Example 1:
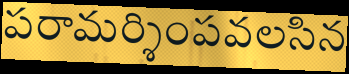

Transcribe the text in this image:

పరామర్శింపవలసిన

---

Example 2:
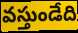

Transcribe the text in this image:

వస్తుండేది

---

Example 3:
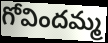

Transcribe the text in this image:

గోవిందమ్మ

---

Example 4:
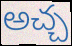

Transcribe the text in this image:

అచ్చ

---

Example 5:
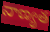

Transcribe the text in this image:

నాణ్యత